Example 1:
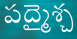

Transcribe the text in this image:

పద్మైశ్చ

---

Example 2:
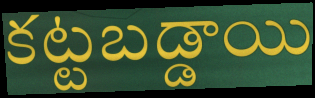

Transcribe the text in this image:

కట్టబడ్డాయి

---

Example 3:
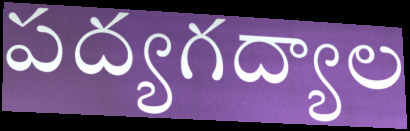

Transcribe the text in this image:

పద్యగద్యాల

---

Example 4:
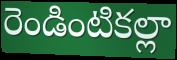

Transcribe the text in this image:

రెండింటికల్లా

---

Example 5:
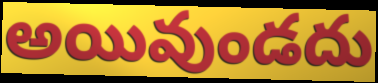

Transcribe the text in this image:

అయివుండదు